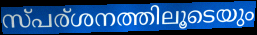
സ്പര്ശനത്തിലൂടെയും